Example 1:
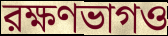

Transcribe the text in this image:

রক্ষণভাগও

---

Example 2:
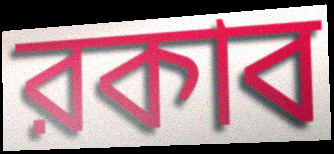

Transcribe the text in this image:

রকাব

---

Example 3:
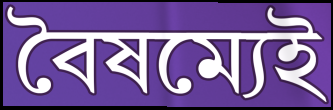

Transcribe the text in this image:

বৈষম্যেই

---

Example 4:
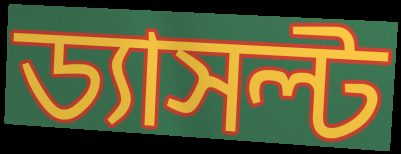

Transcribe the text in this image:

ড্যাসল্ট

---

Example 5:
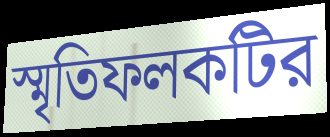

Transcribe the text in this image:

স্মৃতিফলকটির